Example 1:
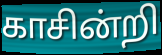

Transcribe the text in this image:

காசின்றி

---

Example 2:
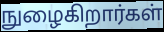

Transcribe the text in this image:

நுழைகிறார்கள்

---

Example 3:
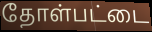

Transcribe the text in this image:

தோள்பட்டை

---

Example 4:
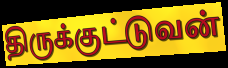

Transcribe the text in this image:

திருக்குட்டுவன்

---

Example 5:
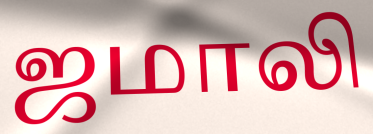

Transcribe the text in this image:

ஜமாலி